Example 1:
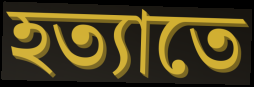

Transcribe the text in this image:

হত্যাতে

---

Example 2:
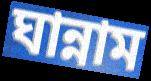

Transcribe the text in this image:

ঘান্নাম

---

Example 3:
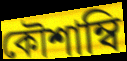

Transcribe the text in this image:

কৌশাম্বি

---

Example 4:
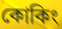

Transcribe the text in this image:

কোকিং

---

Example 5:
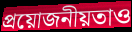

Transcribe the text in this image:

প্রয়োজনীয়তাও